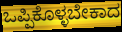
ಒಪ್ಪಿಕೊಳ್ಳಬೇಕಾದ